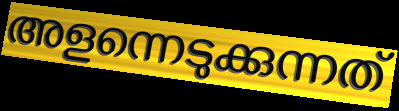
അളന്നെടുക്കുന്നത്